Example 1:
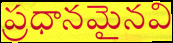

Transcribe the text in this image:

ప్రధానమైనవి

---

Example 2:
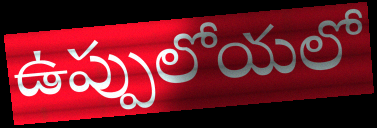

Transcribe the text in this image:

ఉప్పులోయలో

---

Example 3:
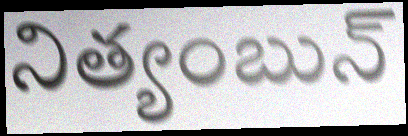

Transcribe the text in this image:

నిత్యంబున్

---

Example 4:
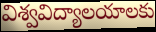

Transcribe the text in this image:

విశ్వవిద్యాలయాలకు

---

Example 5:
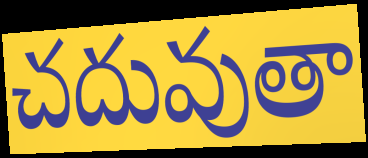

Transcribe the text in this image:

చదువుతా